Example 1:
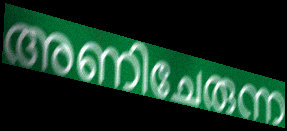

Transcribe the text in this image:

അണിചേരുന്ന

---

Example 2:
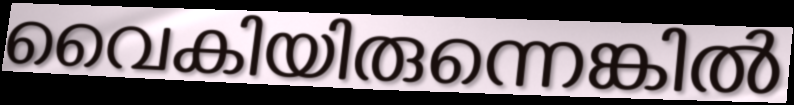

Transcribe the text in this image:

വൈകിയിരുന്നെങ്കിൽ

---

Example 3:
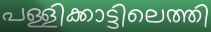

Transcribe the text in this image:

പള്ളിക്കാട്ടിലെത്തി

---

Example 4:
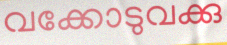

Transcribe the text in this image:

വക്കോടുവക്കു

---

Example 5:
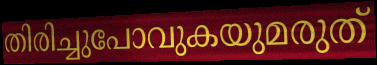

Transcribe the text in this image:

തിരിച്ചുപോവുകയുമരുത്